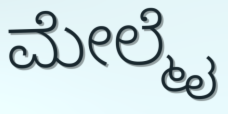
ಮೇಲ್ಮೈ